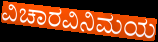
ವಿಚಾರವಿನಿಮಯ